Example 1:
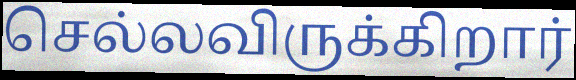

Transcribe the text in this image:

செல்லவிருக்கிறார்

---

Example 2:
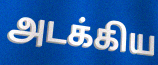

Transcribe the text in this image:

அடக்கிய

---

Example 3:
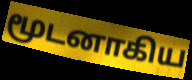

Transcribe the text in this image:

மூடனாகிய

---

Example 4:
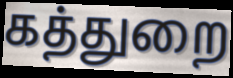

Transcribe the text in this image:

கத்துறை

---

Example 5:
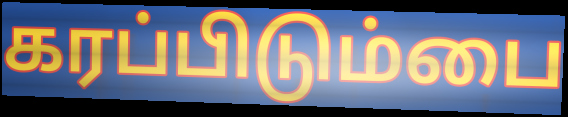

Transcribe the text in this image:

கரப்பிடும்பை